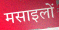
मसाइलों